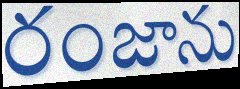
రంజాను